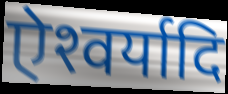
ऐश्वर्यादि